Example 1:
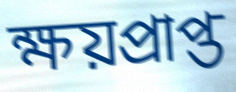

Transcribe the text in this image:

ক্ষয়প্রাপ্ত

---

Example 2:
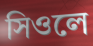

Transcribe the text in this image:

সিওলে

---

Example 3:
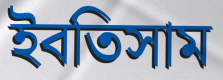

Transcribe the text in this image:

ইবতিসাম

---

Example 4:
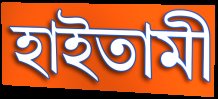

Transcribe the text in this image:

হাইতামী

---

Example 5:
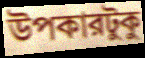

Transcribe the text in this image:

উপকারটুকু